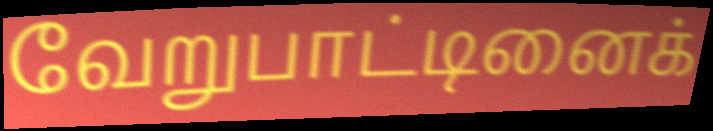
வேறுபாட்டினைக்